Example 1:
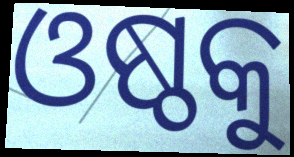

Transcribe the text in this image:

ଓଷ୍ଠକୁ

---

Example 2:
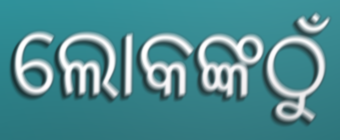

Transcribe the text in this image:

ଲୋକଙ୍କଠୁଁ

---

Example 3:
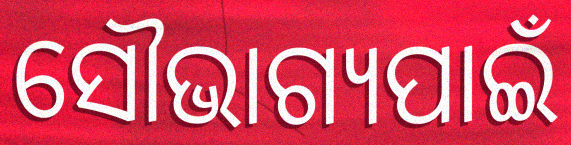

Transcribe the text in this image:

ସୌଭାଗ୍ୟପାଇଁ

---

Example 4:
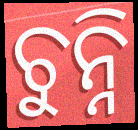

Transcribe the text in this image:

ଚୁନ୍ନି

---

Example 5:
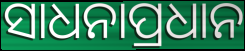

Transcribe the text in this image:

ସାଧନାପ୍ରଧାନ